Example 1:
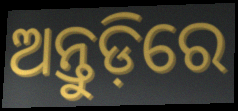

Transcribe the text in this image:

ଅନ୍ତୁଡ଼ିରେ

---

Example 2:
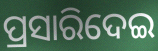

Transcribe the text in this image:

ପ୍ରସାରିଦେଇ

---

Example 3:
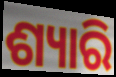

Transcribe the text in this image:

ଶ୍ୟାରି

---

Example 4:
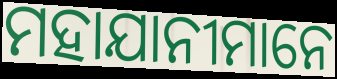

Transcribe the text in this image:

ମହାଯାନୀମାନେ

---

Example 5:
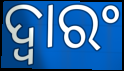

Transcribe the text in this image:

ଦ୍ୱାରଂ